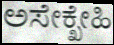
ಅಸೇಕ್ಖೇಹಿ